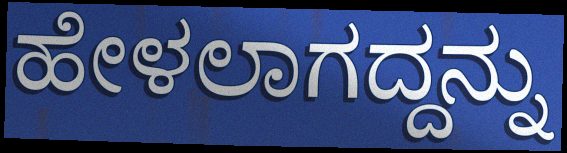
ಹೇಳಲಾಗದ್ದನ್ನು